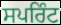
ਸਪਰਿੰਟ